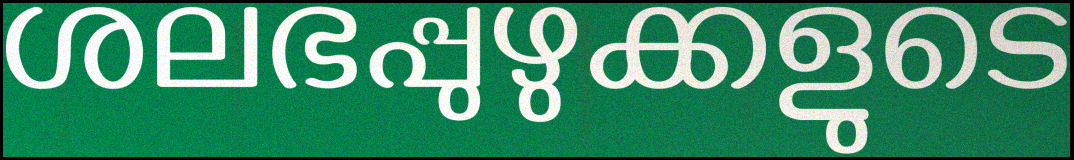
ശലഭപ്പുഴുക്കളുടെ